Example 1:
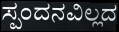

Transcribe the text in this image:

ಸ್ಪಂದನವಿಲ್ಲದ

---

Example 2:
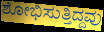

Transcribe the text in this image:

ಶೋಭಿಸುತ್ತಿದ್ದವು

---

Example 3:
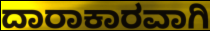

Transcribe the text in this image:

ದಾರಾಕಾರವಾಗಿ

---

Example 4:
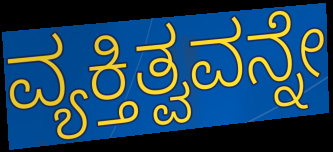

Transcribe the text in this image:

ವ್ಯಕ್ತಿತ್ವವನ್ನೇ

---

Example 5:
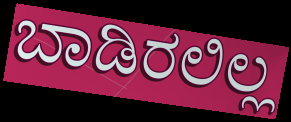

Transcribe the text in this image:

ಬಾಡಿರಲಿಲ್ಲ